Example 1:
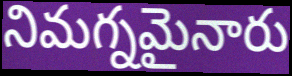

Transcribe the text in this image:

నిమగ్నమైనారు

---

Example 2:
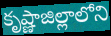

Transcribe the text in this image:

కృష్ణాజిల్లాలోని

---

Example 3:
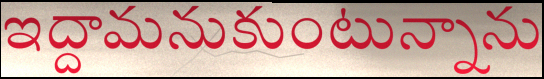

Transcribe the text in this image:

ఇద్దామనుకుంటున్నాను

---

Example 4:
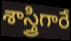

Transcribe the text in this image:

శాస్త్రిగారే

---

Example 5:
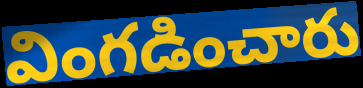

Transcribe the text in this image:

వింగడించారు